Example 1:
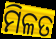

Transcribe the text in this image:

ମିଳତ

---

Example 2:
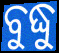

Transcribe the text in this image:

ବୁଦ୍ଧୁ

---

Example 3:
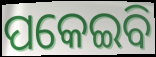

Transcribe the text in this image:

ପକେଇବି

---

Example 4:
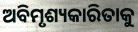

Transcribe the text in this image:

ଅବିମୃଶ୍ୟକାରିତାକୁ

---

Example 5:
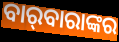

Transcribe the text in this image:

ବାର୍‌ବାରାଙ୍କର